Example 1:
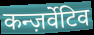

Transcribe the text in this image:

कन्ज़र्वेटिव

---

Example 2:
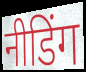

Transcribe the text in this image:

नीडिंग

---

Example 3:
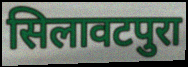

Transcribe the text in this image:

सिलावटपुरा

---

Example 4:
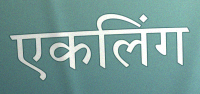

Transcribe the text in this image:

एकलिंग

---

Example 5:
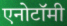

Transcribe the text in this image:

एनोटॉमी